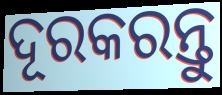
ଦୂରକରନ୍ତୁ